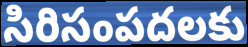
సిరిసంపదలకు